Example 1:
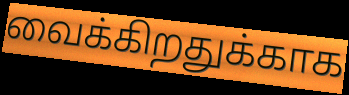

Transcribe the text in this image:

வைக்கிறதுக்காக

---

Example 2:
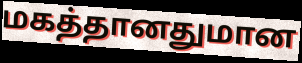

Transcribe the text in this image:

மகத்தானதுமான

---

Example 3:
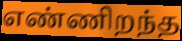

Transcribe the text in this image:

எண்ணிறந்த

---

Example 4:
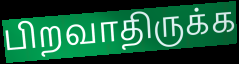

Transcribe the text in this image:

பிறவாதிருக்க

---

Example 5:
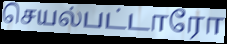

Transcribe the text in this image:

செயல்பட்டாரோ